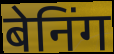
बेनिंग